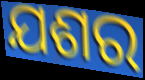
ଯଶର